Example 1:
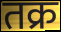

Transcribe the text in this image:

तक्र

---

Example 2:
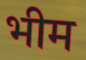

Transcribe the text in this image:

भीम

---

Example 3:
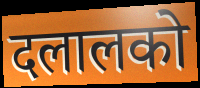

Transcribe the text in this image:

दलालको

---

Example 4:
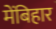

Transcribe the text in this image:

मेंबिहार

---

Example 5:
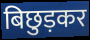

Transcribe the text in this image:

बिछुड़कर